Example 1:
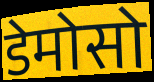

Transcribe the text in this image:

डेमोसो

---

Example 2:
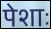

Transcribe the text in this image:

पेशाः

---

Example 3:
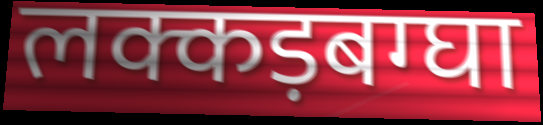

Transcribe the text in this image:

लक्कड़बग्घा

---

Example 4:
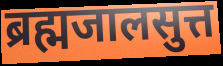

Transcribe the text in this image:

ब्रह्मजालसुत्त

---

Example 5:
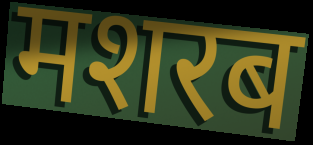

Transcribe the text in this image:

मशरब